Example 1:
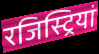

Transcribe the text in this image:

रजिस्ट्रियां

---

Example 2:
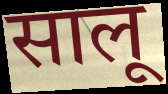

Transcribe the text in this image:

सालू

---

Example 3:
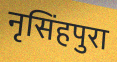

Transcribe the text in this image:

नृसिंहपुरा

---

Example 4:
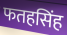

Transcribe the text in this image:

फतहसिंह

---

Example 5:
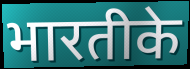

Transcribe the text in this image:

भारतीके